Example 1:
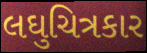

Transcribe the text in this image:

લઘુચિત્રકાર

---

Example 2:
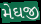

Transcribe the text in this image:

મેઘજી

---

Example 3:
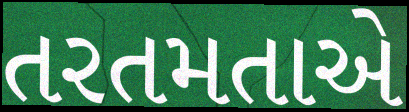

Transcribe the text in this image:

તરતમતાએ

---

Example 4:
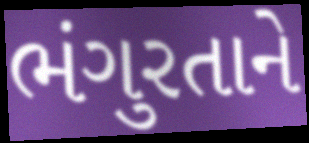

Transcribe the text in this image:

ભંગુરતાને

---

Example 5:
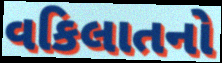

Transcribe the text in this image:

વકિલાતનો